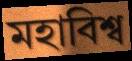
মহাবিশ্ব